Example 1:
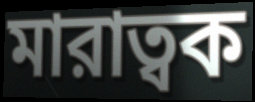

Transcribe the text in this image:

মারাত্বক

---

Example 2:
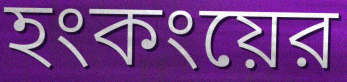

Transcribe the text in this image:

হংকংয়ের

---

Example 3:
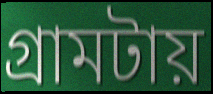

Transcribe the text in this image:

গ্রামটায়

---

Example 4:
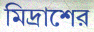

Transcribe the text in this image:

মিদ্রাশের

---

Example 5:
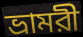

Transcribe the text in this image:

ভ্রামরী